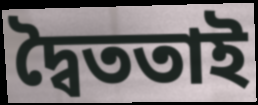
দ্বৈততাই